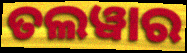
ତଲୱାର